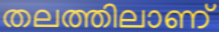
തലത്തിലാണ്